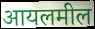
आयलमील